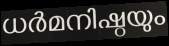
ധർമനിഷ്ഠയും